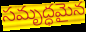
సమృద్ధమైన